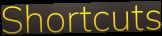
Shortcuts